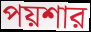
পয়শার